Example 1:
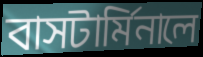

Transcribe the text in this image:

বাসটার্মিনালে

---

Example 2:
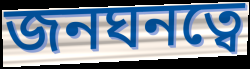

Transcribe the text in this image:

জনঘনত্বে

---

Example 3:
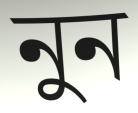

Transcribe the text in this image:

নুন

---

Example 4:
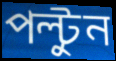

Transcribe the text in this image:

পল্টুন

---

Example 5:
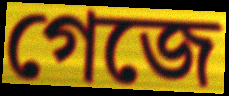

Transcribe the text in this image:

গেজে